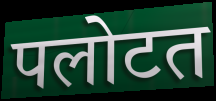
पलोटत